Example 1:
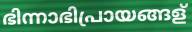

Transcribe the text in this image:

ഭിന്നാഭിപ്രായങ്ങള്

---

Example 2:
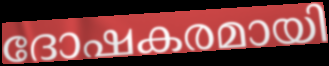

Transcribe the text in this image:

ദോഷകരമായി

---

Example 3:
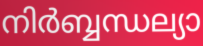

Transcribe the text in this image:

നിർബ്ബന്ധല്യാ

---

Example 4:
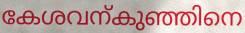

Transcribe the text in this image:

കേശവന്കുഞ്ഞിനെ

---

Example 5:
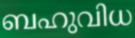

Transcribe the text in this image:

ബഹുവിധ